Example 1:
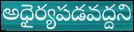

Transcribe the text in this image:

అధైర్యపడవద్దని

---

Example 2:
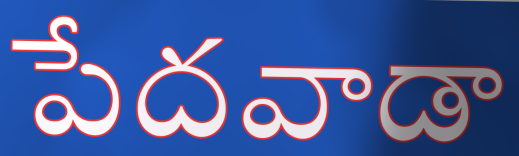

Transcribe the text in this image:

పేదవాడా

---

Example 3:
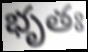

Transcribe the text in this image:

భృతః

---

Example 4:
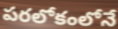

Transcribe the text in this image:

పరలోకంలోనే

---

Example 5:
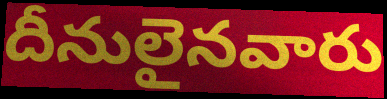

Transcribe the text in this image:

దీనులైనవారు